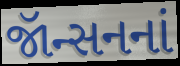
જૉન્સનનાં